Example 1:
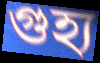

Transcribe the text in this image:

গুহ্য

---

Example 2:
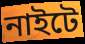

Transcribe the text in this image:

নাইটে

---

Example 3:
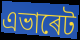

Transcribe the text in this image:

এভাৰেট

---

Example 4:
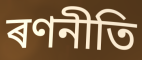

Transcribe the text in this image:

ৰণনীতি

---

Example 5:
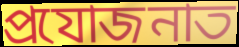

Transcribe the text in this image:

প্ৰযোজনাত